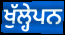
ਖੁੱਲ੍ਹੇਪਨ